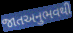
જાતઅનુભવથી